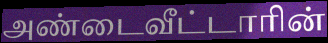
அண்டைவீட்டாரின்